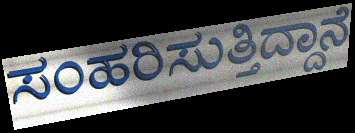
ಸಂಹರಿಸುತ್ತಿದ್ದಾನೆ